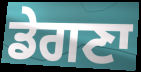
ਡੇਗਣਾ